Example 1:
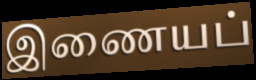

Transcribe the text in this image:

இணையப்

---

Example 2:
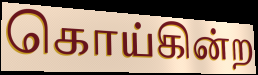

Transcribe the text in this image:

கொய்கின்ற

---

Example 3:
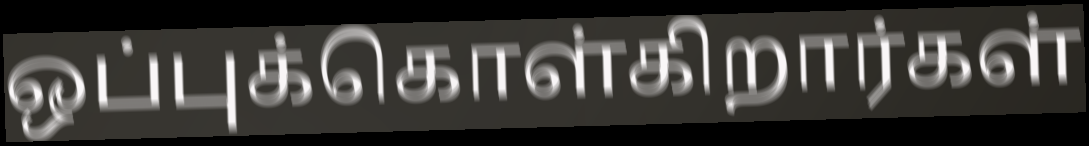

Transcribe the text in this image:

ஒப்புக்கொள்கிறார்கள்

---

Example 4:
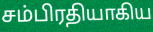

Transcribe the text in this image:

சம்பிரதியாகிய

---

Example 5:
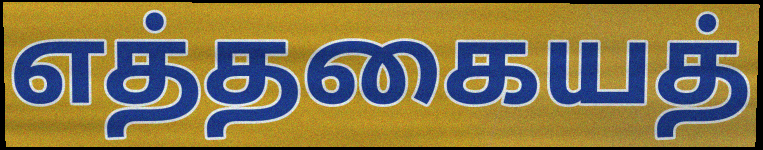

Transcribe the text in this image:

எத்தகையத்